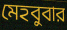
মেহবুবার